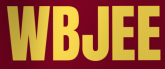
WBJEE